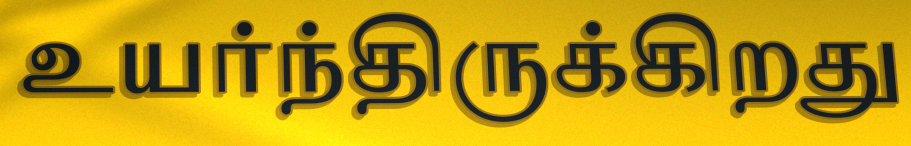
உயர்ந்திருக்கிறது